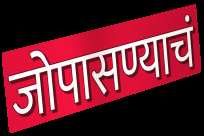
जोपासण्याचं